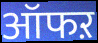
ऑफऱ